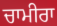
ਚਾਮੀਰਾ